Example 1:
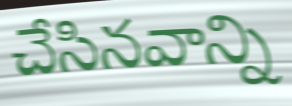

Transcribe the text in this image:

చేసినవాన్ని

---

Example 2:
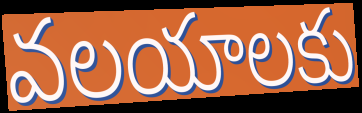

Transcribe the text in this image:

వలయాలకు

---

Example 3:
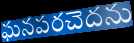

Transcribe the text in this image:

ఘనపరచెదను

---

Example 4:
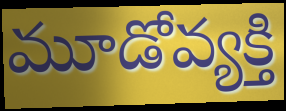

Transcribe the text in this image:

మూడోవ్యక్తి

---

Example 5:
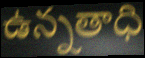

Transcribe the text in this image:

ఉన్నతాధి